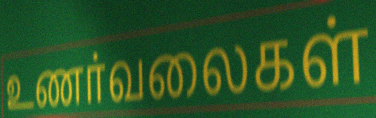
உணர்வலைகள்